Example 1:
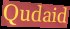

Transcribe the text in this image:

Qudaid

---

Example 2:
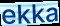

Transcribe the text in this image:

ekka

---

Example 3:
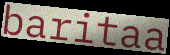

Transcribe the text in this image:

baritaa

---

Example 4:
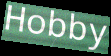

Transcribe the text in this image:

Hobby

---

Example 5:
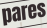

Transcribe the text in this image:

pares